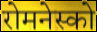
रोमनेस्को